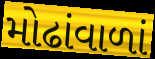
મોઢાંવાળાં